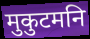
मुकुटमनि